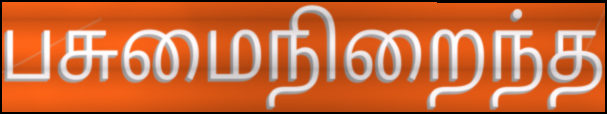
பசுமைநிறைந்த